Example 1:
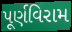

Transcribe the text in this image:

પૂર્ણવિરામ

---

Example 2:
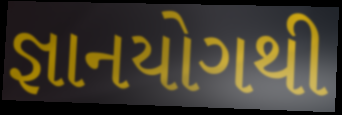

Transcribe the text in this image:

જ્ઞાનયોગથી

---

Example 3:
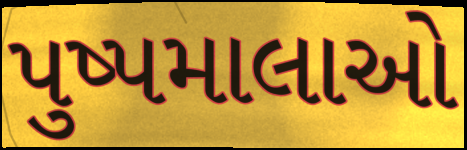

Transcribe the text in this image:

પુષ્પમાલાઓ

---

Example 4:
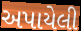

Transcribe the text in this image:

અપાયેલી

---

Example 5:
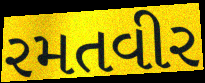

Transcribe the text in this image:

રમતવીર